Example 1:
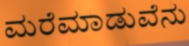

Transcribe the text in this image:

ಮರೆಮಾಡುವೆನು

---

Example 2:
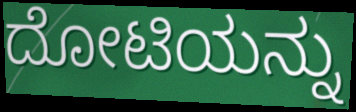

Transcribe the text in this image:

ದೋಟಿಯನ್ನು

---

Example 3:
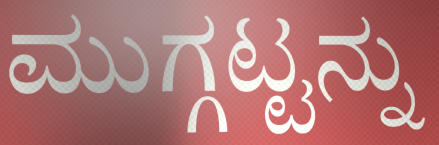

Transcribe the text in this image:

ಮುಗ್ಗಟ್ಟನ್ನು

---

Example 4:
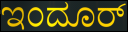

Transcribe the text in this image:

ಇಂದೂರ್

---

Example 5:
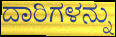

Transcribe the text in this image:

ದಾರಿಗಳನ್ನು